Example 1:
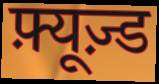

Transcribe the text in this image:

फ़्यूज़्ड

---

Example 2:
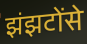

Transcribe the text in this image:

झंझटोंसे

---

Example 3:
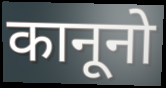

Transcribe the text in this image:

कानूनो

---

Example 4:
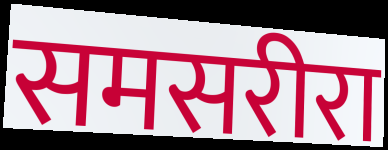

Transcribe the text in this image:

समसरीरा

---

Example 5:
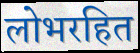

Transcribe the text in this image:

लोभरहित